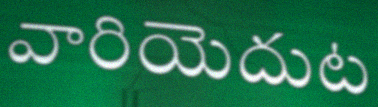
వారియెదుట